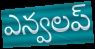
ఎన్వలప్